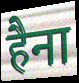
हैना